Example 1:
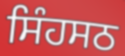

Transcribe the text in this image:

ਸਿੰਹਸਠ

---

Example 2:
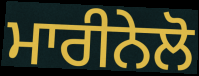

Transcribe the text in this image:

ਮਾਰੀਨੇਲੋ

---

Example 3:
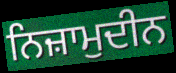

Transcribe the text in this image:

ਨਿਜ਼ਾਮੁਦੀਨ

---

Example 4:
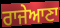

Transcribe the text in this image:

ਰਾਜੇਆਣਾ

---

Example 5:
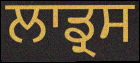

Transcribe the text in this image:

ਲਾਡ੍ਰਸ